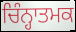
ਚਿੰਨ੍ਹਾਤਮਕ